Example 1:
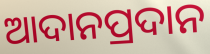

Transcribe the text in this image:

ଆଦାନପ୍ରଦାନ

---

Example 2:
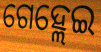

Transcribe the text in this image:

ଗେହ୍ଲେଇ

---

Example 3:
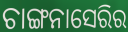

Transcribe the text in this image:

ଚାଙ୍ଗନାସେରିର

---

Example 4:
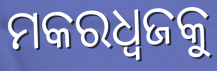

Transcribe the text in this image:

ମକରଧ୍ୱଜକୁ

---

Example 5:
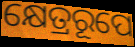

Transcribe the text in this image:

କ୍ଷେତ୍ରରୂପେ